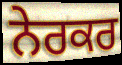
ਨੇਰਕਰ